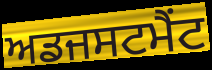
ਅਡਜਸਟਮੈਂਟ